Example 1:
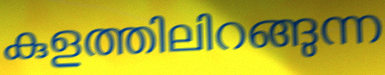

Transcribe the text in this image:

കുളത്തിലിറങ്ങുന്ന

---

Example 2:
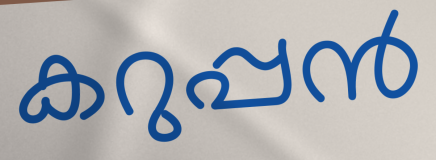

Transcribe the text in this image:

കറുപ്പൻ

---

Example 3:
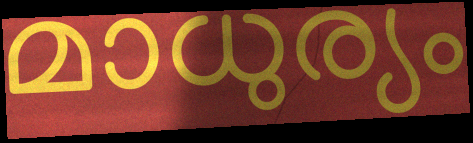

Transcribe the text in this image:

മാധുര്യം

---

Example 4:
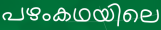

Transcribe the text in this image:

പഴംകഥയിലെ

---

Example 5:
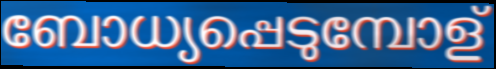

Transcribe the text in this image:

ബോധ്യപ്പെടുമ്പോള്